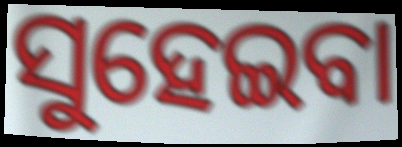
ସୁହେଇବା